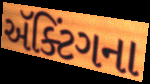
ઍક્ટિંગના